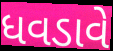
ધવડાવે